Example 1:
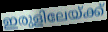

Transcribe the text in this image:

ഇരുളിലേയ്ക്ക്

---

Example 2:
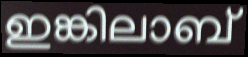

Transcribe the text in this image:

ഇങ്കിലാബ്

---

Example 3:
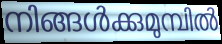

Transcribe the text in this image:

നിങ്ങൾക്കുമുമ്പിൽ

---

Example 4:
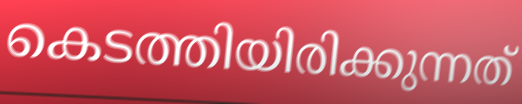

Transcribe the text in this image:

കെടത്തിയിരിക്കുന്നത്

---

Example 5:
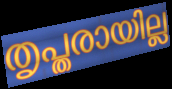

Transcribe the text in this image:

തൃപ്തരായില്ല